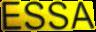
ESSA